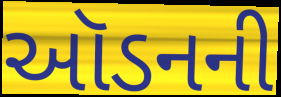
ઑડનની